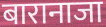
बारानाजा